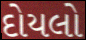
દોયલો